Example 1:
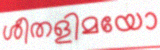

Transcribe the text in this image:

ശീതളിമയോ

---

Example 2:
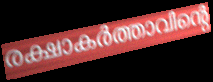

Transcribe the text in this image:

രക്ഷാകർത്താവിന്റെ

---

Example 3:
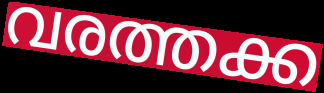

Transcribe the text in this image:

വരത്തക്ക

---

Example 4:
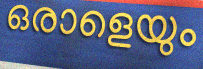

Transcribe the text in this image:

ഒരാളെയും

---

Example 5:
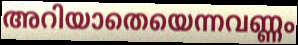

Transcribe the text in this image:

അറിയാതെയെന്നവണ്ണം